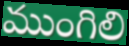
ముంగిలి